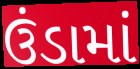
ઉંડામાં